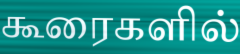
கூரைகளில்